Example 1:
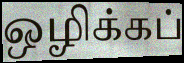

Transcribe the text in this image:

ஒழிக்கப்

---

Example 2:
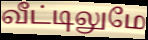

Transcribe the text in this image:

வீட்டிலுமே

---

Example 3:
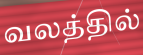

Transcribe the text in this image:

வலத்தில்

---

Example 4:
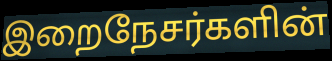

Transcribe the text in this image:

இறைநேசர்களின்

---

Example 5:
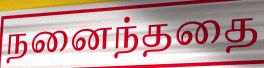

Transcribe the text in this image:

நனைந்ததை